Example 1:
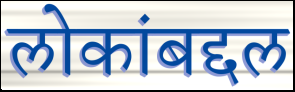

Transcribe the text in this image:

लोकांबद्दल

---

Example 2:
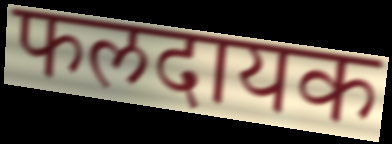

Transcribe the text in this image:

फलदायक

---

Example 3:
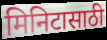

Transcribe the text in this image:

मिनिटासाठी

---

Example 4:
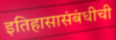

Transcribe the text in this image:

इतिहासासंबंधीची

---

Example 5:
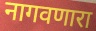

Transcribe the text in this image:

नागवणारा